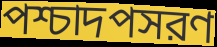
পশ্চাদপসরণ